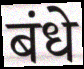
बंधे